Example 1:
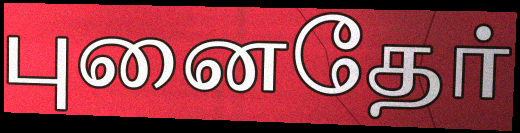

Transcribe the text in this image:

புனைதேர்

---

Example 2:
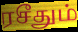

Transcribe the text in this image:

ரசீதும்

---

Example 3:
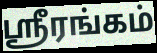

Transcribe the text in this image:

ஸ்ரீரங்கம்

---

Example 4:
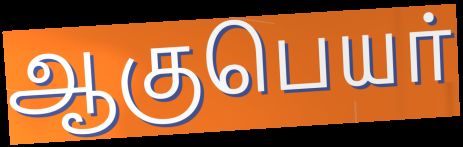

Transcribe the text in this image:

ஆகுபெயர்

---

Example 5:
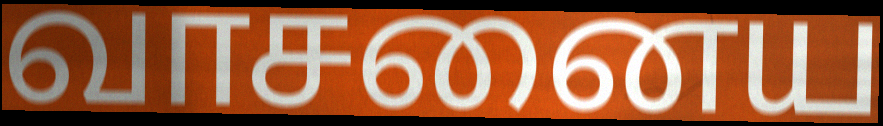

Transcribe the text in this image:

வாசனைய